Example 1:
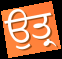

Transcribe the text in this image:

ਉਤ੍ਰ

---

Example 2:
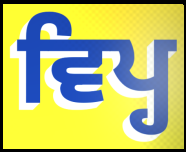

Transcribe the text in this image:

ਵਿਪ੍ਹ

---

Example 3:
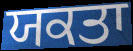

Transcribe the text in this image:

ਯਕਤਾ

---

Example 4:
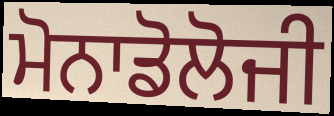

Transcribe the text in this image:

ਮੋਨਾਡੋਲੋਜੀ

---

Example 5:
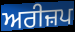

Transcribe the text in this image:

ਅਰੀਜ਼ਪ